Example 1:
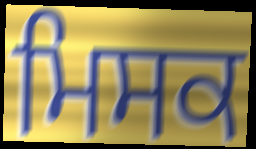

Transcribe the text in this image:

ਮਿਸਕ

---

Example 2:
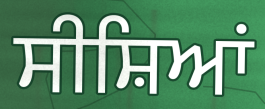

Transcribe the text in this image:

ਸੀਸ਼ਿਆਂ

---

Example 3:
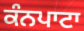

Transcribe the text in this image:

ਕੰਨਪਾਟਾ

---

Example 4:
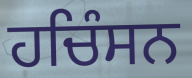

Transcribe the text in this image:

ਹਚਿੰਸਨ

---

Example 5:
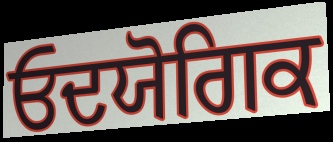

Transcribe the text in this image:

ਓਦਯੋਗਿਕ